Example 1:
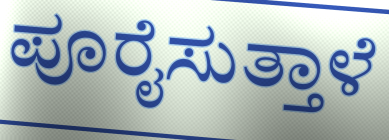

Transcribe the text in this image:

ಪೂರೈಸುತ್ತಾಳೆ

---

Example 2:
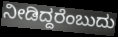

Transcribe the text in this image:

ನೀಡಿದ್ದರೆಂಬುದು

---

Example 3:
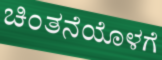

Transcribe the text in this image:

ಚಿಂತನೆಯೊಳಗೆ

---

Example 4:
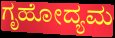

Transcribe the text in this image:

ಗೃಹೋದ್ಯಮ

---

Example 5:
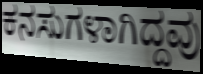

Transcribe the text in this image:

ಕನಸುಗಳಾಗಿದ್ದವು